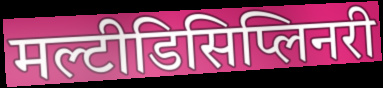
मल्टीडिसिप्लिनरी